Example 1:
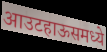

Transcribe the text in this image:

आउटहाऊसमध्ये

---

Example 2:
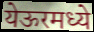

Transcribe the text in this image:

येऊरमध्ये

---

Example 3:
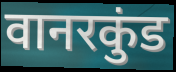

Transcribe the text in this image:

वानरकुंड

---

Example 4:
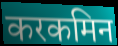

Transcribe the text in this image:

करकमिन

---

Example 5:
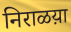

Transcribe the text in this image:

निराळय़ा